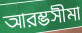
আরম্ভসীমা